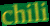
chili